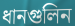
ধানগুলিন